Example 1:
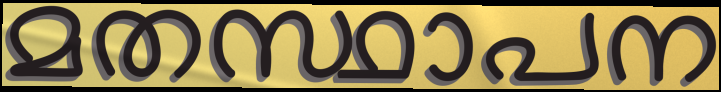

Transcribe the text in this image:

മതസ്ഥാപന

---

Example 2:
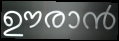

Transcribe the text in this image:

ഊരാൻ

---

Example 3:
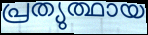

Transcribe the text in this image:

പ്രത്യുത്ഥായ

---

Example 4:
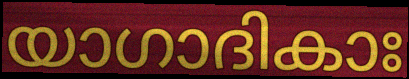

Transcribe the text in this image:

യാഗാദികാഃ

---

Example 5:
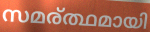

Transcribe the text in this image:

സമര്ത്ഥമായി